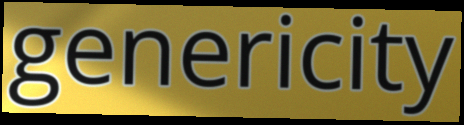
genericity